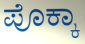
ಪೊಕ್ಕಾ